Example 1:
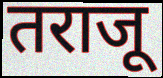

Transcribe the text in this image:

तराजू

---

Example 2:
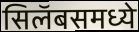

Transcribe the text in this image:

सिलॅबसमध्ये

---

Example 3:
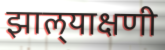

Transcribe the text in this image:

झाल्याक्षणी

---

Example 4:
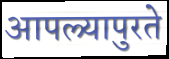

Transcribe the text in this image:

आपल्यापुरते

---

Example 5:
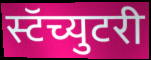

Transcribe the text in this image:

स्टॅच्युटरी